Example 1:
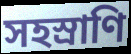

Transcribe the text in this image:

সহস্রাণি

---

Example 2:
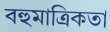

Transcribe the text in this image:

বহুমাত্রিকতা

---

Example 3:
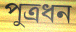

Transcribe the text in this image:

পুত্রধন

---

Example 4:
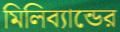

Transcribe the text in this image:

মিলিব্যান্ডের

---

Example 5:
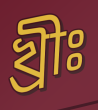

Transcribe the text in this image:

খ্রীঃ